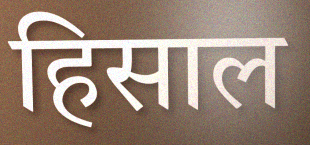
हिसाल